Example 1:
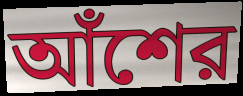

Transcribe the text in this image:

আঁশের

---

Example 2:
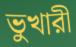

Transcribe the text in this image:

ভুখারী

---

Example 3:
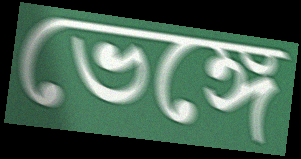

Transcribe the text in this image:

ভেঙ্গে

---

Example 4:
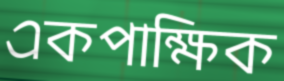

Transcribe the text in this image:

একপাক্ষিক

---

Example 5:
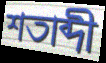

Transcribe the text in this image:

শতাব্দী